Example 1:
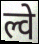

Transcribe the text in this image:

ल्वे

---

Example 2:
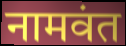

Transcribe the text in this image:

नामवंत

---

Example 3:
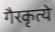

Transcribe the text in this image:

गैरकृत्ये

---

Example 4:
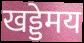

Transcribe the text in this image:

खड्डेमय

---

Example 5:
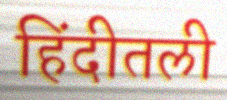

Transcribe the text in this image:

हिंदीतली